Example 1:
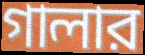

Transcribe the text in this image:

গালার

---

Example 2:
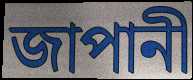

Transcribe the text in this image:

জাপানী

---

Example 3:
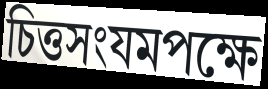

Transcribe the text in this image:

চিত্তসংযমপক্ষে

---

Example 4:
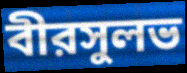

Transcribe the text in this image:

বীরসুলভ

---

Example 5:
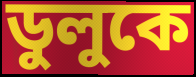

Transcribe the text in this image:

ডুলুকে